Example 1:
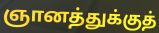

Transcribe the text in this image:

ஞானத்துக்குத்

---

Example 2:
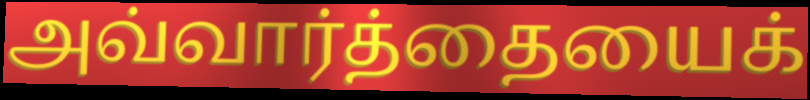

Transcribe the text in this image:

அவ்வார்த்தையைக்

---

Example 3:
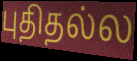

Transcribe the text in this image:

புதிதல்ல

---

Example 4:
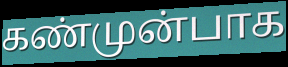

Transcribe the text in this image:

கண்முன்பாக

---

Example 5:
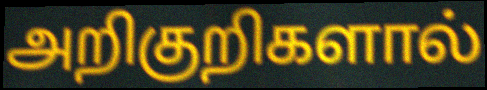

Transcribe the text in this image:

அறிகுறிகளால்